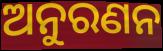
ଅନୁରଣନ